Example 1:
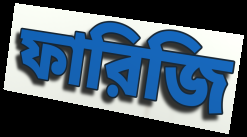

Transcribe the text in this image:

ফারিজি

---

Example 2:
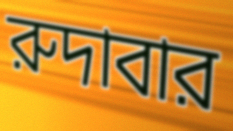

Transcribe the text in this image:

রুদাবার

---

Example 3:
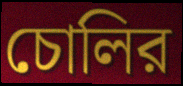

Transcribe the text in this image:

চোলির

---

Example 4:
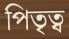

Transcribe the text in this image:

পিতৃত্ব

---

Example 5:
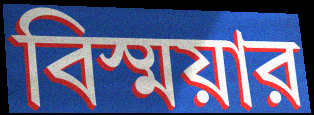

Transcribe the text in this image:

বিস্ময়ার